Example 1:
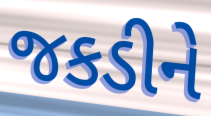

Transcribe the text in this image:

જકડીને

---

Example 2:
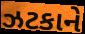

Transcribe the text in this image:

ઝટકાને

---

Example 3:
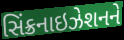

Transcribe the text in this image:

સિંક્રનાઇઝેશનને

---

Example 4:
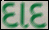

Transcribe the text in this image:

દાદ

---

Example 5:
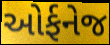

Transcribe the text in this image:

ઓર્ફનેજ